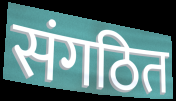
संगठित